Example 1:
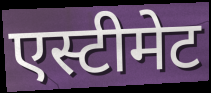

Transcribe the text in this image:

एस्टीमेट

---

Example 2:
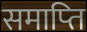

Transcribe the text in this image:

समाप्‍ति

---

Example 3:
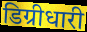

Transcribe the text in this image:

डिग्रीधारी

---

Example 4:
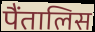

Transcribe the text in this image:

पैंतालिस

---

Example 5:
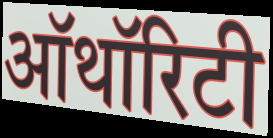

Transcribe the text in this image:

ऑथॉरिटी